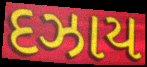
દઝાય